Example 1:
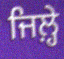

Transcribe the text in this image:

ਜਿਲ਼੍ਹੇ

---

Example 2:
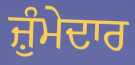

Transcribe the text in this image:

ਜ਼ੁੰਮੇਦਾਰ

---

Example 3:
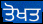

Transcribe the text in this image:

ਤੋਖਤ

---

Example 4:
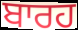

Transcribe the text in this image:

ਬਾਰਹ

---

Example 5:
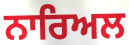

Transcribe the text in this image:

ਨਾਰਿਅਲ